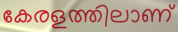
കേരളത്തിലാണ്